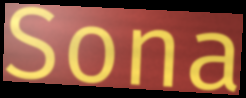
Sona